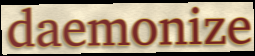
daemonize